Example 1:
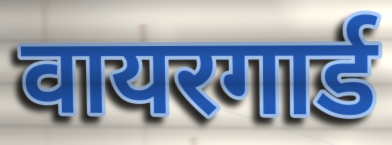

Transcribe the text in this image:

वायरगार्ड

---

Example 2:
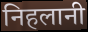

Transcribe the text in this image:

निहलानी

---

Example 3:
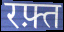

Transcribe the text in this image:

रफ़्त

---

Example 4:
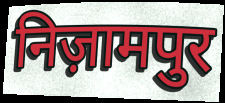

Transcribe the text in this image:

निज़ामपुर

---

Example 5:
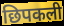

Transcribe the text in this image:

छिपकली